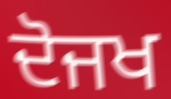
ਦੋਜਖ